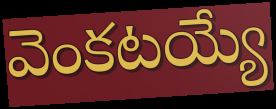
వెంకటయ్యే